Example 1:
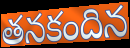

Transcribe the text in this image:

తనకందిన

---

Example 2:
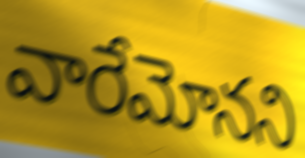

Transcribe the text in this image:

వారేమోనని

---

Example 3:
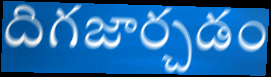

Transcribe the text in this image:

దిగజార్చడం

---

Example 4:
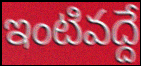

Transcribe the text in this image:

ఇంటివద్దే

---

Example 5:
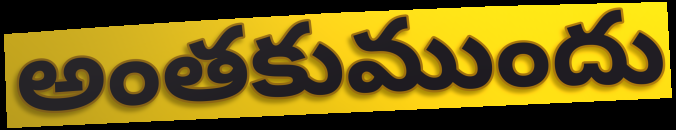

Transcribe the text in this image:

అంతకుముందు